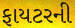
ફાયટરની